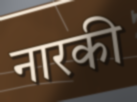
नारकी